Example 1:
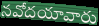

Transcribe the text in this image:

నవోదయావారు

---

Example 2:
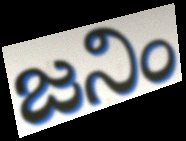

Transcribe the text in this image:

జనిం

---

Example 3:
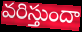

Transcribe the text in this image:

వరిస్తుందా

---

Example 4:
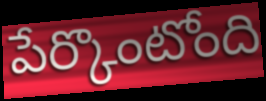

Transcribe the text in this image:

పేర్కొంటోంది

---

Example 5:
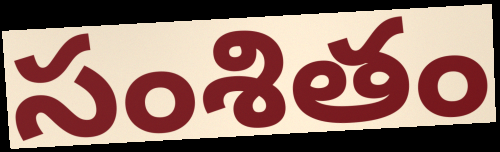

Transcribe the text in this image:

సంశితం